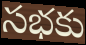
సభకు